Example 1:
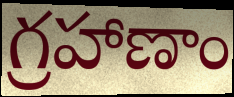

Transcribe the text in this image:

గ్రహాణాం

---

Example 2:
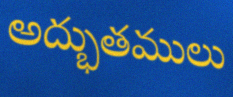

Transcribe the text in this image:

అద్భుతములు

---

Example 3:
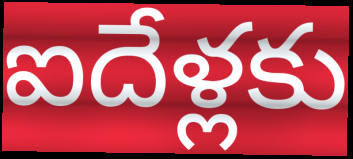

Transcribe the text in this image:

ఐదేళ్లకు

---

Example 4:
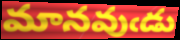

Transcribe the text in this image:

మానవుఁడు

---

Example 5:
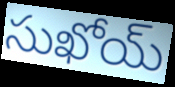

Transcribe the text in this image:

సుఖోయ్